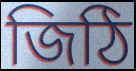
জিঠি